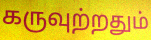
கருவுற்றதும்